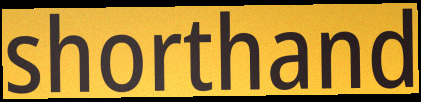
shorthand